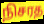
நிசரத